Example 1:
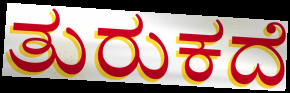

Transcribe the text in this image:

ತುರುಕದೆ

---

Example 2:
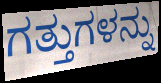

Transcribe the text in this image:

ಗತ್ತುಗಳನ್ನು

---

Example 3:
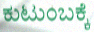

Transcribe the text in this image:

ಕುಟುಂಬಕ್ಕೆ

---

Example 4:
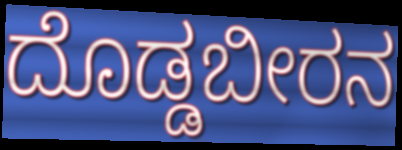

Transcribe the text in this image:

ದೊಡ್ಡಬೀರನ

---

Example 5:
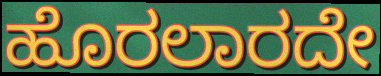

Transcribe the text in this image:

ಹೊರಲಾರದೇ